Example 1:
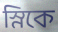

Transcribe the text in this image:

স্নিকে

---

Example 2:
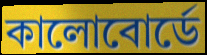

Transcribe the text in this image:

কালোবোর্ডে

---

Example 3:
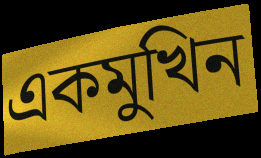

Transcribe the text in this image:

একমুখিন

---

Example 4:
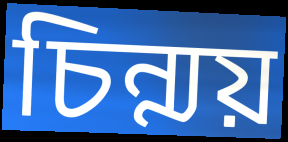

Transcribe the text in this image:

চিন্ময়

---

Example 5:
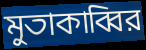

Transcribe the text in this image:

মুতাকাব্বির